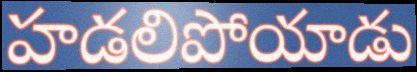
హడలిపోయాడు